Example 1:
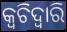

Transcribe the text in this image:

କ୍ଵଚିଦ୍ୱାରି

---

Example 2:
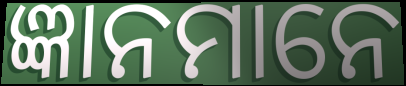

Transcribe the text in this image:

ଜ୍ଞାନମାନେ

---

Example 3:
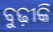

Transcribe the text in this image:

ବୁଢ଼ୀକି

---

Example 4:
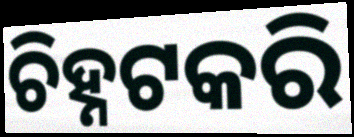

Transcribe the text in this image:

ଚିହ୍ନଟକରି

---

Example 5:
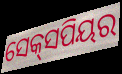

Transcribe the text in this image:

ସେକ୍‍ସପିୟର